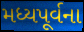
મધ્યપૂર્વના